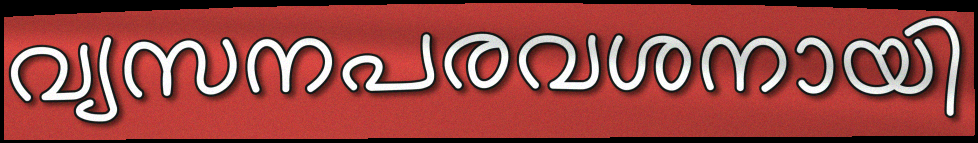
വ്യസനപരവശനായി